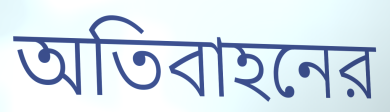
অতিবাহনের